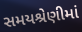
સમયશ્રેણીમાં